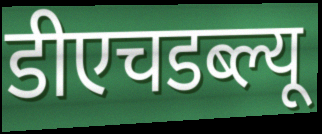
डीएचडब्ल्यू